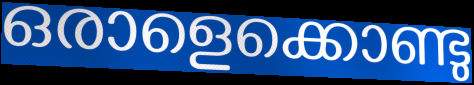
ഒരാളെക്കൊണ്ടു